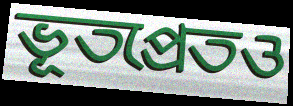
ভূতপ্রেতও